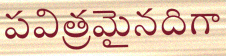
పవిత్రమైనదిగా